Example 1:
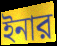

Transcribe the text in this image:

ইনার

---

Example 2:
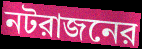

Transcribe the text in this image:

নটরাজনের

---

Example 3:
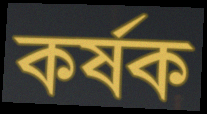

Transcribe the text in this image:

কর্ষক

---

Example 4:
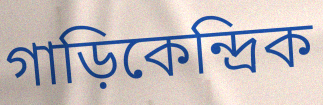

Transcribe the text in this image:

গাড়িকেন্দ্রিক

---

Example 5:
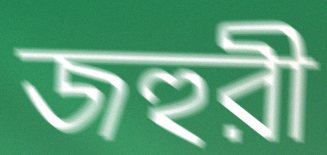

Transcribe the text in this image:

জহুরী